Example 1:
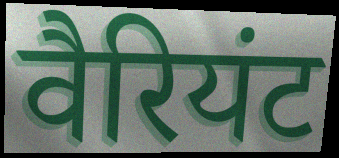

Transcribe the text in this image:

वैरियंट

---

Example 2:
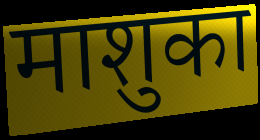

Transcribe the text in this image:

माशुका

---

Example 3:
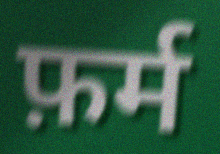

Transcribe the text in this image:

फ़र्म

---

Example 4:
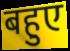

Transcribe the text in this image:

बहुए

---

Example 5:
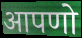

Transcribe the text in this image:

आपणो